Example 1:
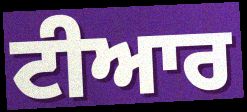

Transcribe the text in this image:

ਟੀਆਰ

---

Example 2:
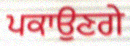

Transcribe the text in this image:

ਪਕਾਉਣਗੇ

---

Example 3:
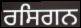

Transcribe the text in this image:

ਰਸਿਗਨ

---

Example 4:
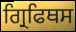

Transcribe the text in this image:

ਗ੍ਰਿਫਿਥਸ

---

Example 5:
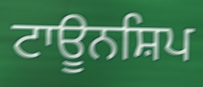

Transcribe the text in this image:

ਟਾਊਨਸ਼ਿਪ